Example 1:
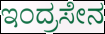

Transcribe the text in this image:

ಇಂದ್ರಸೇನ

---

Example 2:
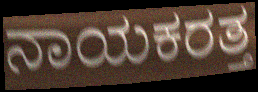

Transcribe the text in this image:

ನಾಯಕರತ್ತ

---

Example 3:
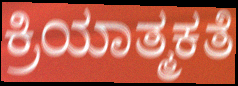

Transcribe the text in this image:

ಕ್ರಿಯಾತ್ಮಕತೆ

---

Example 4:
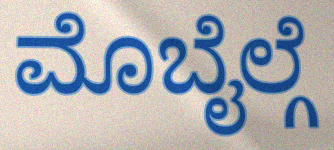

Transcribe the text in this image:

ಮೊಬೈಲ್ಗೆ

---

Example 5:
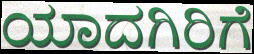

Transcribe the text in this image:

ಯಾದಗಿರಿಗೆ